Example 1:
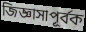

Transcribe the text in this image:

জিজ্ঞাসাপূর্বক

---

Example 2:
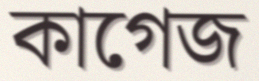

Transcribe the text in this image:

কাগেজ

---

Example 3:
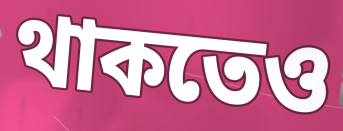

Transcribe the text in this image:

থাকতেও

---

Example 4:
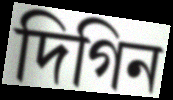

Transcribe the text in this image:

দিগিন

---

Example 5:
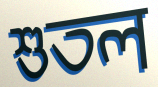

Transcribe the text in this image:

শুতল